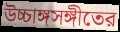
উচ্চাঙ্গসঙ্গীতের